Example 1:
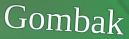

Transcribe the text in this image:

Gombak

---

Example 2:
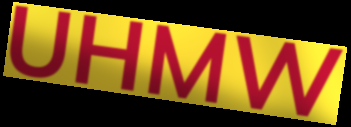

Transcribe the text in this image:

UHMW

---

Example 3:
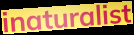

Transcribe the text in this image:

inaturalist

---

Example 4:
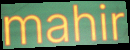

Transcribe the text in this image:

mahir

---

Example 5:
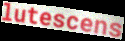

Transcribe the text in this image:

lutescens